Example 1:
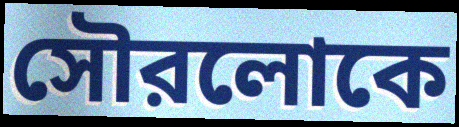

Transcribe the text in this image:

সৌরলোকে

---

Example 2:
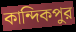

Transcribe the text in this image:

কান্দিকপুর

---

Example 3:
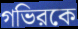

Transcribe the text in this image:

গভিরকে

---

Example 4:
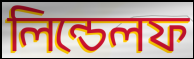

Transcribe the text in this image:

লিন্ডেলফ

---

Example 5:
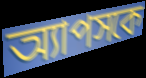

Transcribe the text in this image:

অ্যাপসকে